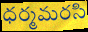
ధర్మమరసి